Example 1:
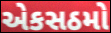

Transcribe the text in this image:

એકસઠમો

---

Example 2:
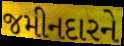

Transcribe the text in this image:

જમીનદારને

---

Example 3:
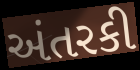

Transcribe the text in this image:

અંતરકી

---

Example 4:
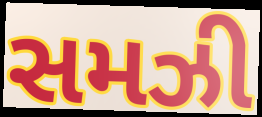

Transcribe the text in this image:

સમઝી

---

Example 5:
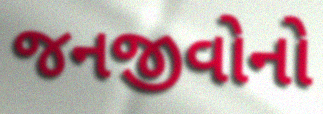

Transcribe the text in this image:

જનજીવોનો